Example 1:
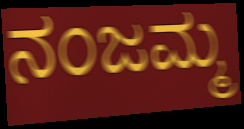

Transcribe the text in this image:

ನಂಜಮ್ಮ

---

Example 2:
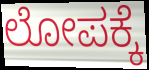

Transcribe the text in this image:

ಲೋಪಕ್ಕೆ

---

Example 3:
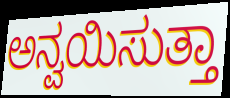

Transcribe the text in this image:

ಅನ್ವಯಿಸುತ್ತಾ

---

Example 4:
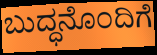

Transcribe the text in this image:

ಬುದ್ಧನೊಂದಿಗೆ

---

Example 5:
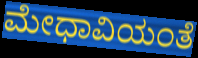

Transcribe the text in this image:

ಮೇಧಾವಿಯಂತೆ